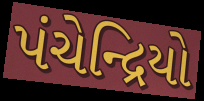
પંચેન્દ્રિયો